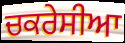
ਚਕਰੇਸੀਆ